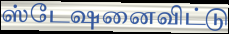
ஸ்டேஷனைவிட்டு